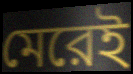
মেরেই